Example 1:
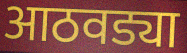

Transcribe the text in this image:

आठवड्या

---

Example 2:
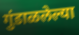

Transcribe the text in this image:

गुंडाळलेल्या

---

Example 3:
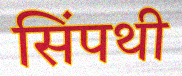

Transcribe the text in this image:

सिंपथी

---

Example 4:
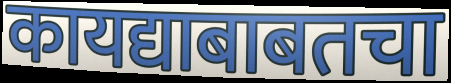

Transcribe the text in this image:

कायद्याबाबतचा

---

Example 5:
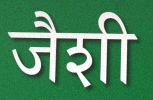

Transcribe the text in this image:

जैशी